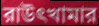
রাউৎখামার